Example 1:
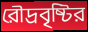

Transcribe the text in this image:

রৌদ্রবৃষ্টির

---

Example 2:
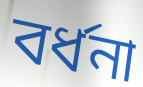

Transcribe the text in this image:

বর্ধনা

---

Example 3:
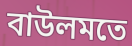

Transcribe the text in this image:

বাউলমতে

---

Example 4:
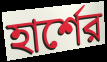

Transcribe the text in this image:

হার্শের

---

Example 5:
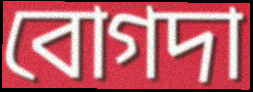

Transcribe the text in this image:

বোগদা